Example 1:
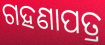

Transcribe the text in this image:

ଗହଣାପତ୍ର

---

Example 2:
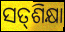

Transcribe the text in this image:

ସତ୍‌ଶିକ୍ଷା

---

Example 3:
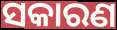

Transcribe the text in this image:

ସକାରଣ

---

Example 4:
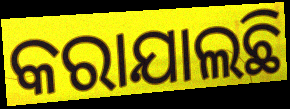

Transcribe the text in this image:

କରାଯାଲଛି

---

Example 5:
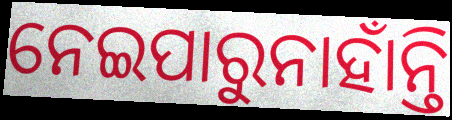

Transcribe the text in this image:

ନେଇପାରୁନାହାଁନ୍ତି